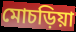
মোচড়িয়া